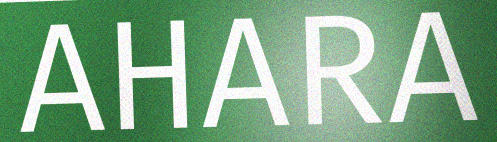
AHARA